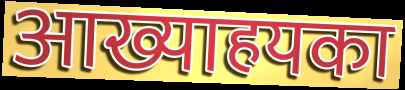
आख्याहयका